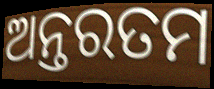
ଅନ୍ତରତମ